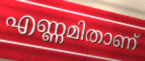
എണ്ണമിതാണ്